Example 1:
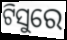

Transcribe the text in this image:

ଟିସୁରେ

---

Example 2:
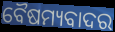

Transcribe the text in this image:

ବୈଷମ୍ୟବାଦର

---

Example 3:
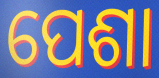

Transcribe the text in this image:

ପେଶା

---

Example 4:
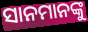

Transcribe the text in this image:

ସାନମାନଙ୍କୁ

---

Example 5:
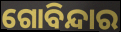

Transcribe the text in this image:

ଗୋବିନ୍ଦାର